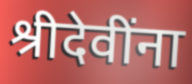
श्रीदेवींना